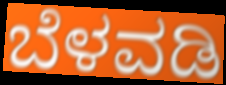
ಬೆಳವಡಿ